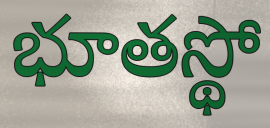
భూతస్థో